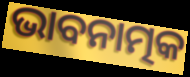
ଭାବନାତ୍ମକ